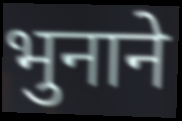
भुनाने